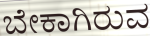
ಬೇಕಾಗಿರುವ